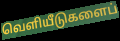
வெளியீடுகளைப்